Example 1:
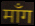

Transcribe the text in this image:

माँग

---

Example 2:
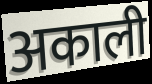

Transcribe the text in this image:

अकाली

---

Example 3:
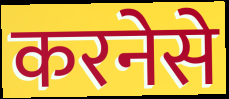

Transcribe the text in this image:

करनेसे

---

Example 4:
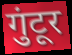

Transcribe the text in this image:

गुंटूर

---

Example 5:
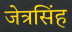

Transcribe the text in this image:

जेत्रसिंह